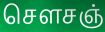
செளசஞ்